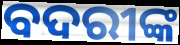
ବଦରୀଙ୍କ